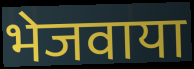
भेजवाया